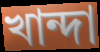
খান্দা